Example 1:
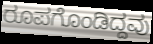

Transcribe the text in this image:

ರೂಪಗೊಂಡಿದ್ದವು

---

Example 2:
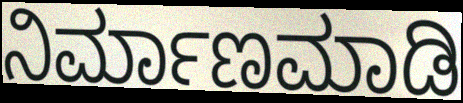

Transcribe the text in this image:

ನಿರ್ಮಾಣಮಾಡಿ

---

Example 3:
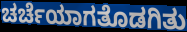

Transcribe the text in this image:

ಚರ್ಚೆಯಾಗತೊಡಗಿತು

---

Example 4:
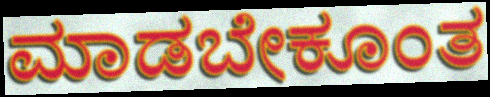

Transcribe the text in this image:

ಮಾಡಬೇಕೂಂತ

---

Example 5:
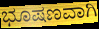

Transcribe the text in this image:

ಭೂಷಣವಾಗಿ